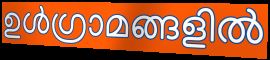
ഉൾഗ്രാമങ്ങളിൽ